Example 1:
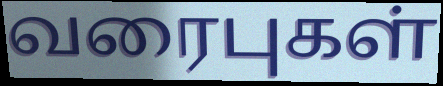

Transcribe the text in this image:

வரைபுகள்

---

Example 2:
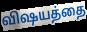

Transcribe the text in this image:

விஷயத்தை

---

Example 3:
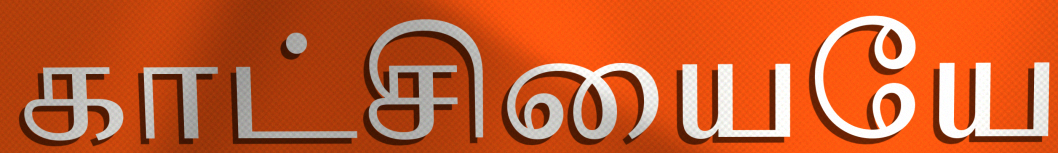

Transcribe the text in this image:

காட்சியையே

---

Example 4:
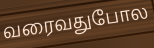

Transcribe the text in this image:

வரைவதுபோல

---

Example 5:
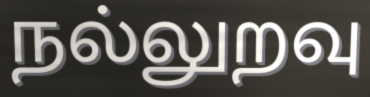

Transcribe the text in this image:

நல்லுறவு